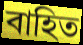
বাহিত